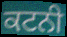
ਕਟਨੀ